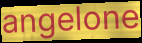
angelone